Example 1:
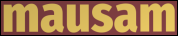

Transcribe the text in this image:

mausam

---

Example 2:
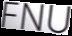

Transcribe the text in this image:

FNU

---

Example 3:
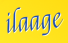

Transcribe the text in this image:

ilaage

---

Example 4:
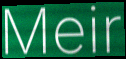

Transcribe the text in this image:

Meir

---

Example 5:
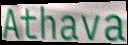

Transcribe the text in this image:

Athava